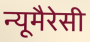
न्यूमैरेसी